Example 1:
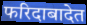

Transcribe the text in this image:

फरिदाबादेत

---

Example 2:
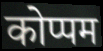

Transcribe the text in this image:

कोप्पम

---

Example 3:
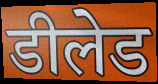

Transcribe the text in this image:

डीलेड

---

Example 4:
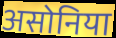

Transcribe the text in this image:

असोनिया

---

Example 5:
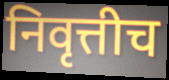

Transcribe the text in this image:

निवृत्तीच